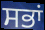
ਸਭਾਂ